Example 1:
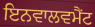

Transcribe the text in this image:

ਇਨਵਾਲਵਮੈਂਟ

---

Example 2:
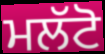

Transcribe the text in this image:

ਮਲੱਟੋ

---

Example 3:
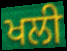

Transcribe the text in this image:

ਖਲੀ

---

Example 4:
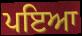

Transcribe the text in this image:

ਪਇਆ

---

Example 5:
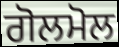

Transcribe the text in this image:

ਗੋਲਮੋਲ